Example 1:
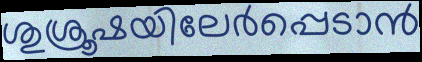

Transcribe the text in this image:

ശുശ്രൂഷയിലേർപ്പെടാൻ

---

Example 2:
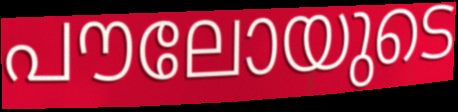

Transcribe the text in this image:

പൗലോയുടെ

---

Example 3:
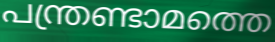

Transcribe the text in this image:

പന്ത്രണ്ടാമത്തെ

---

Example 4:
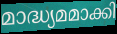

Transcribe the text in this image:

മാദ്ധ്യമമാക്കി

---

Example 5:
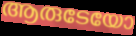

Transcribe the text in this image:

ആരുടേയോ